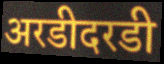
अरडीदरडी